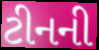
ટીનની